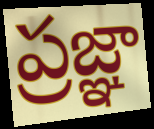
ప్రజ్ఞా